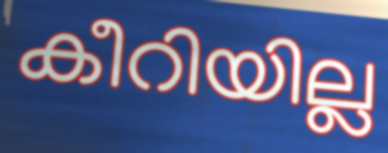
കീറിയില്ല